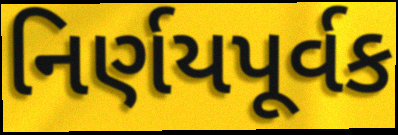
નિર્ણયપૂર્વક